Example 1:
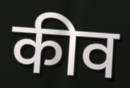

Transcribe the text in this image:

कीव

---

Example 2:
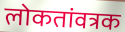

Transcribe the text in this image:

लोकतांवत्रक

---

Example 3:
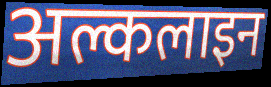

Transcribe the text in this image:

अल्कलाइन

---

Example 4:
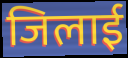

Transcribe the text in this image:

जिलाई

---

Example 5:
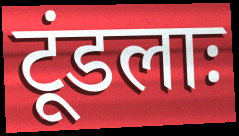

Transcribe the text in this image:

टूंडलाः